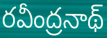
రవీంద్రనాథ్